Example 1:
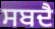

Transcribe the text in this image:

ਸਬਦੈ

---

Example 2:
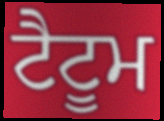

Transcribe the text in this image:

ਟੈਟੂਮ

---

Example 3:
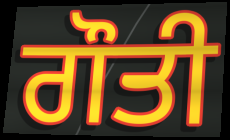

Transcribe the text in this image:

ਗੌਤੀ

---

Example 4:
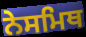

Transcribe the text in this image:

ਨੇਸਮਿਥ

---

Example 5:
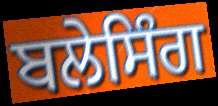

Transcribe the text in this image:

ਬਲੇਸਿੰਗ